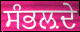
ਸੰਭਲ਼ਦੇ